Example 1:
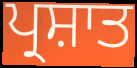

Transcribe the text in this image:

ਪ੍ਰਸ਼ਾਤ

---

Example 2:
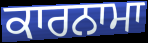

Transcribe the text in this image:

ਕਾਰਨਾਮਾ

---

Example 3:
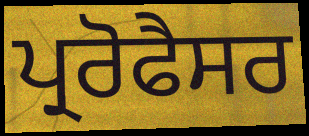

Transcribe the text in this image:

ਪ੍ਰਰੋਫੈਸਰ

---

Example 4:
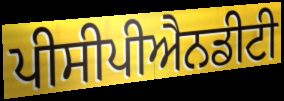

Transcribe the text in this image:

ਪੀਸੀਪੀਐਨਡੀਟੀ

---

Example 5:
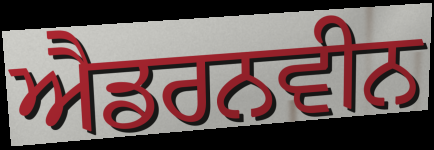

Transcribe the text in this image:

ਐਡਰਨਵੀਨ